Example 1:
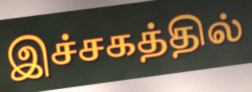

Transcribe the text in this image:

இச்சகத்தில்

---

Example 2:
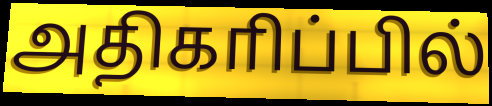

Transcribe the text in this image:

அதிகரிப்பில்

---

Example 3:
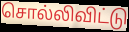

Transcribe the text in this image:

சொல்லிவிட்டு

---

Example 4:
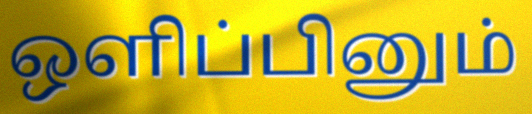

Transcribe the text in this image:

ஒளிப்பினும்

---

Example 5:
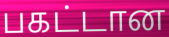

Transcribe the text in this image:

பகட்டான